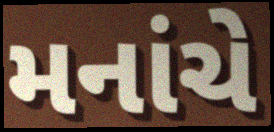
મનાંચે